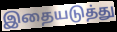
இதையடுத்து